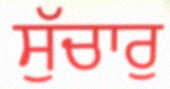
ਸੁੱਚਾਰੁ